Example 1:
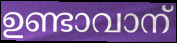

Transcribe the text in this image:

ഉണ്ടാവാന്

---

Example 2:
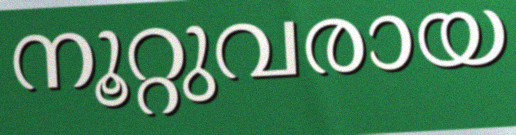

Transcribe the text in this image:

നൂറ്റുവരായ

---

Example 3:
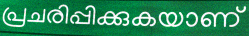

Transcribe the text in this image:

പ്രചരിപ്പിക്കുകയാണ്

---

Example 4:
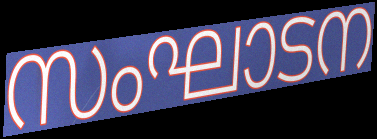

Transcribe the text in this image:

സംഘാടന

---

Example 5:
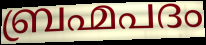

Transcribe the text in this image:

ബ്രഹ്മപദം